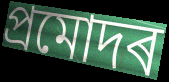
প্ৰমোদৰ